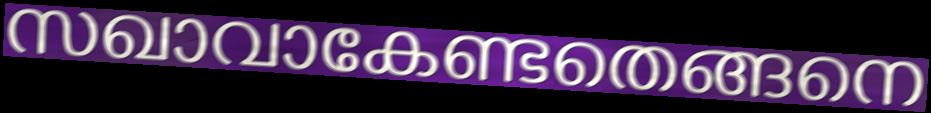
സഖാവാകേണ്ടതെങ്ങനെ